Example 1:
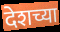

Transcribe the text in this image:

देशच्या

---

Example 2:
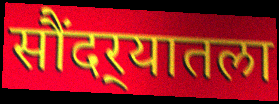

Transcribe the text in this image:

सौंदर्यातला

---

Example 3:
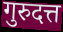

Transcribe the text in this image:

गुरुदत्त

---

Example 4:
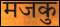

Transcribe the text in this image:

मजकु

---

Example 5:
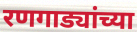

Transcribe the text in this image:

रणगाड्यांच्या